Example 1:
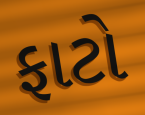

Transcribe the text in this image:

ફાટો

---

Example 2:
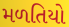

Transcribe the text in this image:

મળતિયો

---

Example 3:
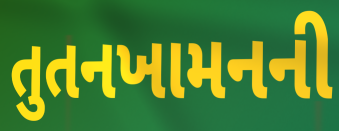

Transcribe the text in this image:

તુતનખામનની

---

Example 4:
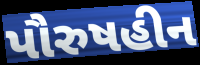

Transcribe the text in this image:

પૌરુષહીન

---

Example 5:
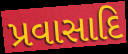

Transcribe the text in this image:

પ્રવાસાદિ